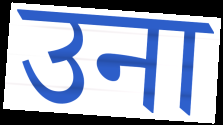
उना